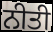
ਨੀਤੀ